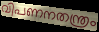
വിപണനതന്ത്രം